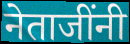
नेताजींनी